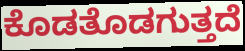
ಕೊಡತೊಡಗುತ್ತದೆ